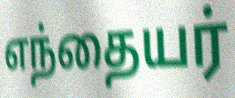
எந்தையர்